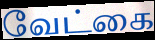
வேட்கை